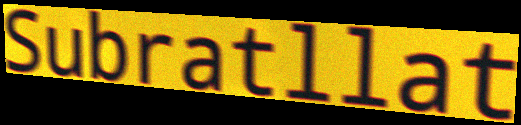
Subratllat